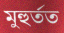
মুহুৰ্তত